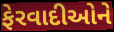
ફેરવાદીઓને